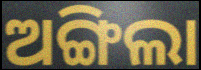
ଅଙ୍ଗିଲା